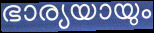
ഭാര്യയായും